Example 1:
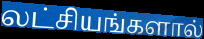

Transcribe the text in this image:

லட்சியங்களால்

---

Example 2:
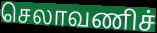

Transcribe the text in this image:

செலாவணிச்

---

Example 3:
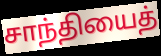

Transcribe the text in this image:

சாந்தியைத்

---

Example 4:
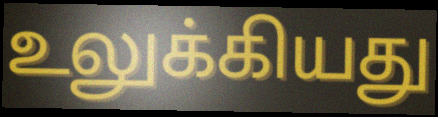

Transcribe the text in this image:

உலுக்கியது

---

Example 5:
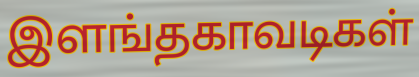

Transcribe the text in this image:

இளங்தகாவடிகள்